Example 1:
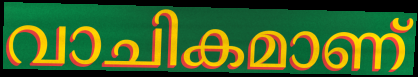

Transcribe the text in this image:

വാചികമാണ്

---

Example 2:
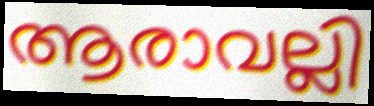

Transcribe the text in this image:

ആരാവല്ലി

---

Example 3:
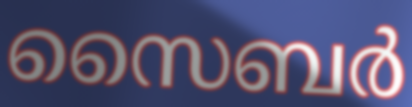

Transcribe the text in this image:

സൈബർ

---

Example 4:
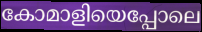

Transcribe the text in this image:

കോമാളിയെപ്പോലെ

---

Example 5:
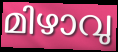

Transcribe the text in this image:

മിഴാവു